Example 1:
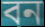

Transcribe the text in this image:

বন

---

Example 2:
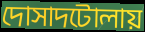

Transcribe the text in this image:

দোসাদটোলায়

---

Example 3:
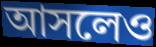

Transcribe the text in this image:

আসলেও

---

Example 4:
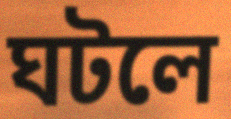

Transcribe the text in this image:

ঘটলে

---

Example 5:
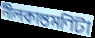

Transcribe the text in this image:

নীলকান্তমণিটা